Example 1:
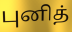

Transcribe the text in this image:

புனித்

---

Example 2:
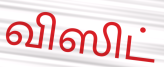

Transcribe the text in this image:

விஸிட்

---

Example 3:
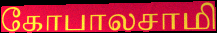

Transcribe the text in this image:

கோபாலசாமி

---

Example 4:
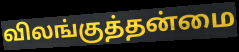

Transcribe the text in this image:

விலங்குத்தன்மை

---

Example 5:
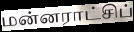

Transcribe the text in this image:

மன்னராட்சிப்